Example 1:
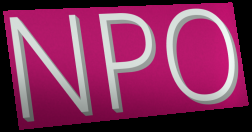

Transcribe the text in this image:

NPO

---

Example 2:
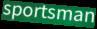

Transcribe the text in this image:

sportsman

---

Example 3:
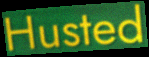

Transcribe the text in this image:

Husted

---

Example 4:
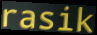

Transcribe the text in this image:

rasik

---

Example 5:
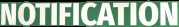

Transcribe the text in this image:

NOTIFICATION